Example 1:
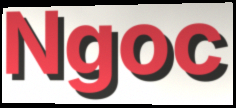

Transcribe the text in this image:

Ngoc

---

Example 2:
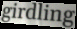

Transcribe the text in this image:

girdling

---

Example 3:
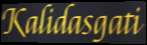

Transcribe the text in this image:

Kalidasgati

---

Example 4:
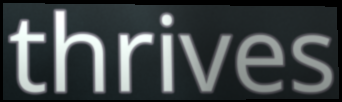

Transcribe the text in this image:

thrives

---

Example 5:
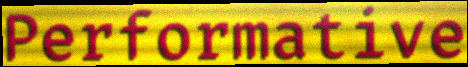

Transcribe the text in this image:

Performative